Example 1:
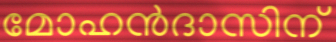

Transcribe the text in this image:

മോഹൻദാസിന്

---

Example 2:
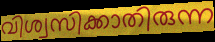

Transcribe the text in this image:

വിശ്വസിക്കാതിരുന്ന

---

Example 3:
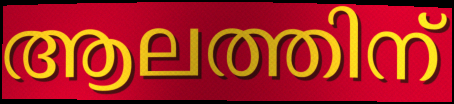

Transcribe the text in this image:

ആലത്തിന്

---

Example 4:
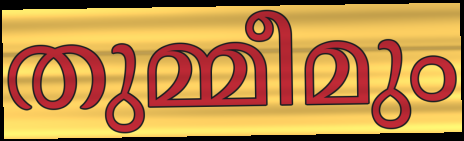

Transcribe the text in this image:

തുമ്മീമും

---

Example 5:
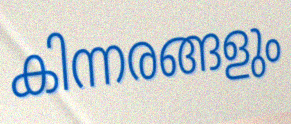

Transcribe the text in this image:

കിന്നരങ്ങളും